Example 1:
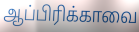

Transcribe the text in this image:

ஆப்பிரிக்காவை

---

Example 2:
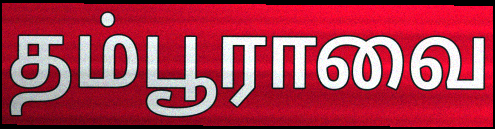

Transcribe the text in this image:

தம்பூராவை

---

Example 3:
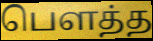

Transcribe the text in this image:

பெளத்த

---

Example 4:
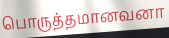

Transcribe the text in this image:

பொருத்தமானவனா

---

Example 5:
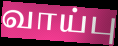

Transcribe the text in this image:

வாய்பு